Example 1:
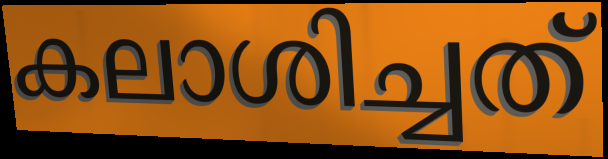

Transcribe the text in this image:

കലാശിച്ചത്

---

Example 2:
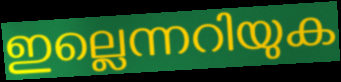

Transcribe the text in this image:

ഇല്ലെന്നറിയുക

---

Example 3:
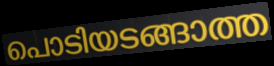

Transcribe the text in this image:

പൊടിയടങ്ങാത്ത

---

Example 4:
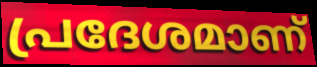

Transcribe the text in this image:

പ്രദേശമാണ്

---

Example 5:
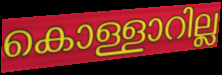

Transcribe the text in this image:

കൊള്ളാറില്ല